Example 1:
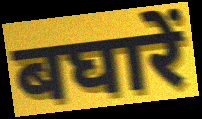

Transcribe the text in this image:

बघारें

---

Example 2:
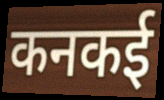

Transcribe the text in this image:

कनकई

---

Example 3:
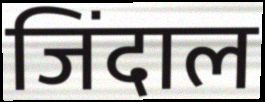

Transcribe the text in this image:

जिंदाल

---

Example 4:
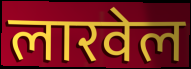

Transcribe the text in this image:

लारवेल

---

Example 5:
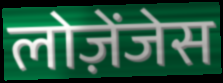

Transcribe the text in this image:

लोज़ेंजेस